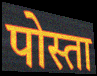
पोस्ता